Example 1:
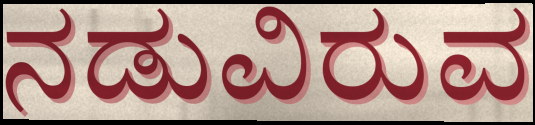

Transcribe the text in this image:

ನಡುವಿರುವ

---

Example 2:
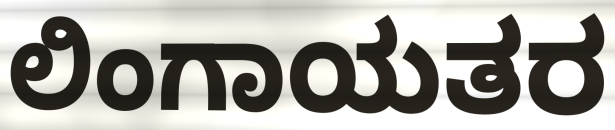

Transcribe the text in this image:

ಲಿಂಗಾಯತರ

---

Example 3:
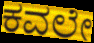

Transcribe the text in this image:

ಕವಲೇ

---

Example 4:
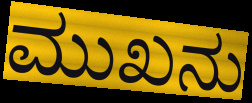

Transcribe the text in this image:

ಮುಖನು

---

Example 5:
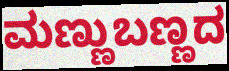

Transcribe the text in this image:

ಮಣ್ಣುಬಣ್ಣದ